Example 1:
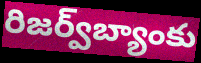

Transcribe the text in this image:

రిజర్వ్‌బ్యాంకు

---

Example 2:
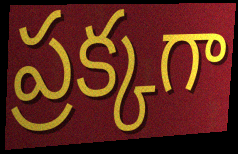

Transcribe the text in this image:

ప్రక్కగా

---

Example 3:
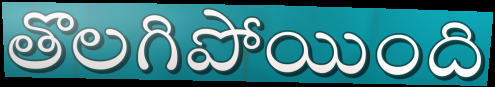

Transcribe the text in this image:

తొలగిపోయింది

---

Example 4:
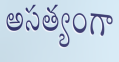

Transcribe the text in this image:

అసత్యంగా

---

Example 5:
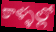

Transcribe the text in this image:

కాళ్ళల్లో